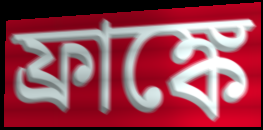
ফ্রাঙ্কে